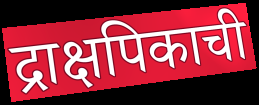
द्राक्षपिकाची